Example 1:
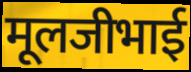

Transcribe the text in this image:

मूलजीभाई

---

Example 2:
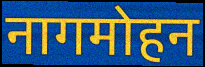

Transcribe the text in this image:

नागमोहन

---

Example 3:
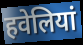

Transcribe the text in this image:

हवेलियां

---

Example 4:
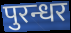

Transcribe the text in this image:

पुरन्धर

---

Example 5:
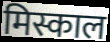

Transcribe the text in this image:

मिस्काल